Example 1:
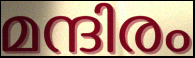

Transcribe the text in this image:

മന്ദിരം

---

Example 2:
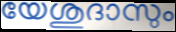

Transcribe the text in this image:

യേശുദാസും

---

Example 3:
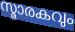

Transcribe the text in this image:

സ്മാരകവും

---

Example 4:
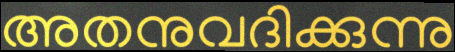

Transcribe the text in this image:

അതനുവദിക്കുന്നു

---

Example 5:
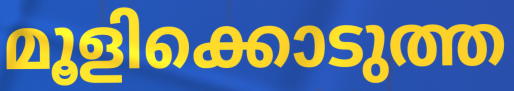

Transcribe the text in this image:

മൂളിക്കൊടുത്ത